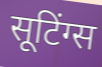
सूटिंग्स